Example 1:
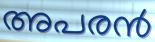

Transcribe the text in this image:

അപരൻ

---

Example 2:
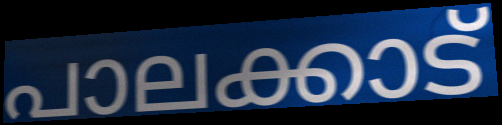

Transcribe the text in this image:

പാലക്കാട്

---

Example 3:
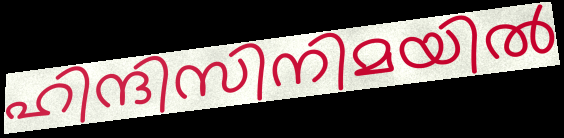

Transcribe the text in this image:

ഹിന്ദിസിനിമയിൽ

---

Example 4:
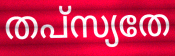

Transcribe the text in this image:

തപ്സ്യതേ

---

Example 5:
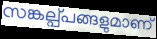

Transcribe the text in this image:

സങ്കല്പ്പങ്ങളുമാണ്